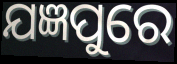
ଯଜ୍ଞପୁରେ